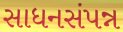
સાધનસંપન્ન